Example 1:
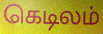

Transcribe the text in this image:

கெடிலம்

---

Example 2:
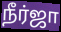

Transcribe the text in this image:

நீர்ஜா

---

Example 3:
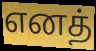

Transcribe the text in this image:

எனத்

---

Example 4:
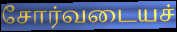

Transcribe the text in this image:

சோர்வடையச்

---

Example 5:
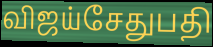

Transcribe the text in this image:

விஜய்சேதுபதி